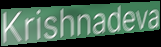
Krishnadeva